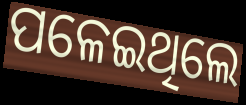
ପଳେଇଥିଲେ